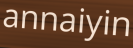
annaiyin